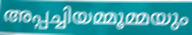
അപ്പച്ചിയമ്മൂമ്മയും